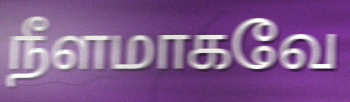
நீளமாகவே